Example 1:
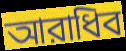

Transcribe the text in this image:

আরাধিব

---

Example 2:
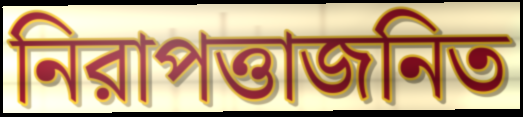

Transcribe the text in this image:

নিরাপত্তাজনিত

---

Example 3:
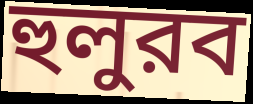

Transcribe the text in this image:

হুলুরব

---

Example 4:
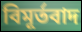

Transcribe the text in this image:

বিমূর্তবাদ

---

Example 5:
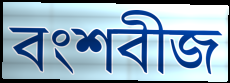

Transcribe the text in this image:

বংশবীজ